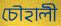
চৌহালী